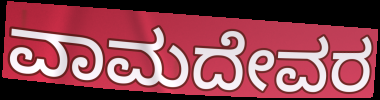
ವಾಮದೇವರ